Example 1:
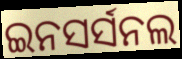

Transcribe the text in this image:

ଇନସର୍ସନଲ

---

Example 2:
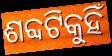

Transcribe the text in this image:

ଶବ୍ଦଟିକୁହିଁ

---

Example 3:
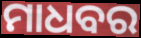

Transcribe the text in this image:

ମାଧବର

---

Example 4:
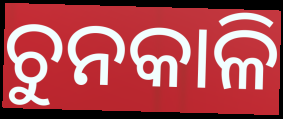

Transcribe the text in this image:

ଚୁନକାଳି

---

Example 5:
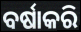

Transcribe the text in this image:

ବର୍ଷାକରି